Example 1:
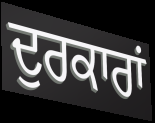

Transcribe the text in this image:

ਦੁਰਕਾਰਾਂ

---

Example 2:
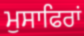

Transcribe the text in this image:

ਮੁਸਾਫਿਰਾਂ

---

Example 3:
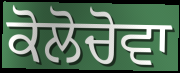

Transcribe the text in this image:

ਕੋਲੋਚੋਵਾ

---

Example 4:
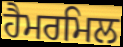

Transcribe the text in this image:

ਹੈਮਰਮਿਲ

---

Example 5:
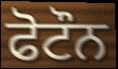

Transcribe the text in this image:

ਫੋਟੌਨ